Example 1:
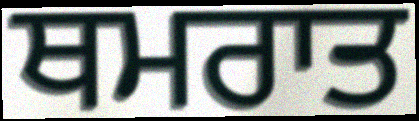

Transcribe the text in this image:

ਥਮਰਾਤ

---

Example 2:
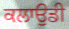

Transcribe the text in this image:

ਕਲਾਉਡੀ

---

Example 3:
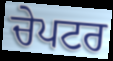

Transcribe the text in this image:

ਚੇਪਟਰ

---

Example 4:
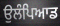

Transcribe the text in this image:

ਉਲੰਪਿਆਡ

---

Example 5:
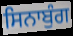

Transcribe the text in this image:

ਸਿਨਾਬੁੰਗ